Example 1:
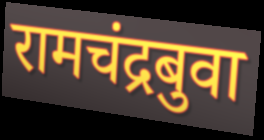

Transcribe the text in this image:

रामचंद्रबुवा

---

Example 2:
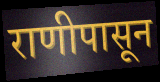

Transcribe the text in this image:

राणीपासून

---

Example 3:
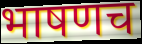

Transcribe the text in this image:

भाषणच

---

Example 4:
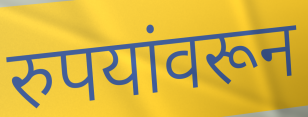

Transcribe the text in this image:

रुपयांवरून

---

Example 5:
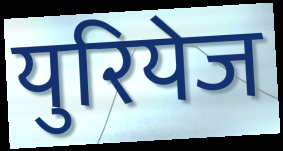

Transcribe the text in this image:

युरियेज